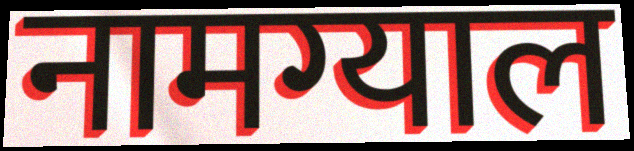
नामग्याल